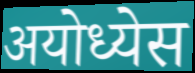
अयोध्येस